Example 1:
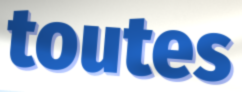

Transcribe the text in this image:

toutes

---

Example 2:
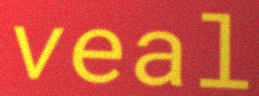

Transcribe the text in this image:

veal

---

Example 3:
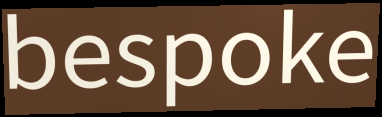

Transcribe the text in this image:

bespoke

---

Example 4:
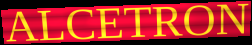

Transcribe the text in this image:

ALCETRON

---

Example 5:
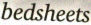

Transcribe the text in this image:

bedsheets